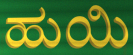
ಹುಯಿ